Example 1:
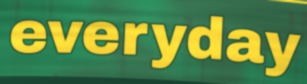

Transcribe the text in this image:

everyday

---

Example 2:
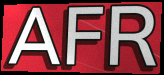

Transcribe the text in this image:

AFR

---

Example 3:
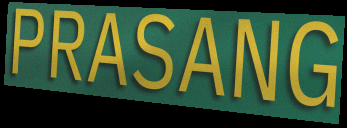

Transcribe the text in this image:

PRASANG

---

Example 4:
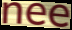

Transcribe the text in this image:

nee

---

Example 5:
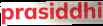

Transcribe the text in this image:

prasiddhi